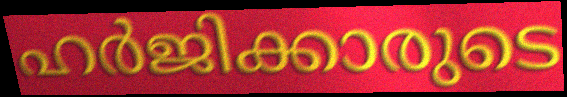
ഹർജിക്കാരുടെ